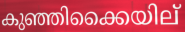
കുഞ്ഞിക്കൈയില്